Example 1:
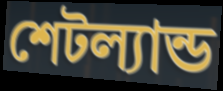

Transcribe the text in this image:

শেটল্যান্ড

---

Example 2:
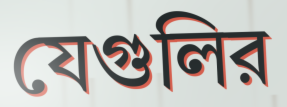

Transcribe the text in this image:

যেগুলির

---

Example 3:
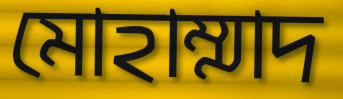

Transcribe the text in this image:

মোহাম্মাদ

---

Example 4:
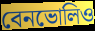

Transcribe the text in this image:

বেনভোলিও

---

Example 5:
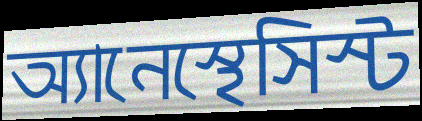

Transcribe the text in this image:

অ্যানেস্থেসিস্ট